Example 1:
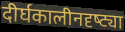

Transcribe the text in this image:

दीर्घकालीनदृष्ट्या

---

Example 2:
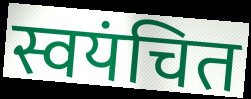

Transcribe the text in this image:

स्वयंचित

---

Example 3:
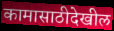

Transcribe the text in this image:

कामासाठीदेखील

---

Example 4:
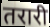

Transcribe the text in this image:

तरारी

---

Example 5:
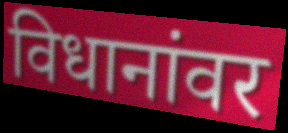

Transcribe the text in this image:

विधानांवर